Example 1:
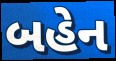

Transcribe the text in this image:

બહેન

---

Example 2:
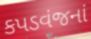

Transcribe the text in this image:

કપડવંજનાં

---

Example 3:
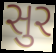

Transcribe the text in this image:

સુર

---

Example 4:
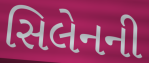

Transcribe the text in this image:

સિલેનની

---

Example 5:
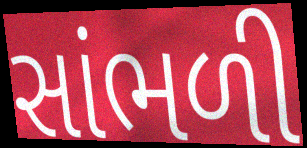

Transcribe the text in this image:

સાંભળી